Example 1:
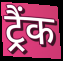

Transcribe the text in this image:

ट्रैंक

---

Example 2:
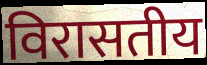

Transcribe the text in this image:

विरासतीय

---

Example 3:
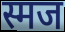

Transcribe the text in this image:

स्मज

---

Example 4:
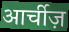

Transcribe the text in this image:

आर्चीज़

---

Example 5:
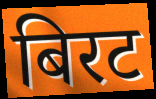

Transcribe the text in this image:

बिरट